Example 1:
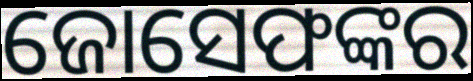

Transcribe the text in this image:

ଜୋସେଫଙ୍କର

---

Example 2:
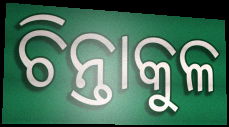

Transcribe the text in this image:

ଚିନ୍ତାକୁଳ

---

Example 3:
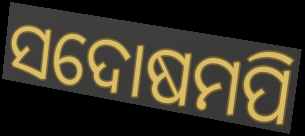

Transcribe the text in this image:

ସଦୋଷମପି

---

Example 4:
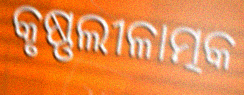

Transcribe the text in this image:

କୃଷ୍ଣଲୀଳାତ୍ମକ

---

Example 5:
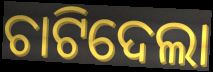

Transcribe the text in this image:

ଚାଟିଦେଲା